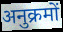
अनुक्रमों